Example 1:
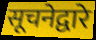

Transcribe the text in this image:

सूचनेद्वारे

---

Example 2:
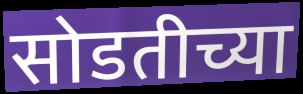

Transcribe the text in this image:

सोडतीच्या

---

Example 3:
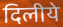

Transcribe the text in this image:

दिलीये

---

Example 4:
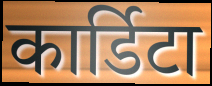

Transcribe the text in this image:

कार्डिटा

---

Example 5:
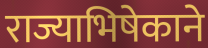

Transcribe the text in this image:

राज्याभिषेकाने